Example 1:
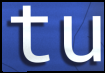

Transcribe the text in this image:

tu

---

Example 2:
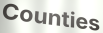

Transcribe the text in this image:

Counties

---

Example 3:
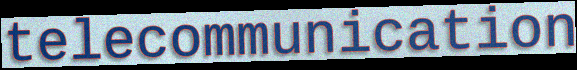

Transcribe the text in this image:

telecommunication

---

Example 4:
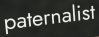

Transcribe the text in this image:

paternalist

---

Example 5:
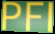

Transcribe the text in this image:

PFI